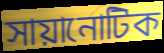
সায়ানোটিক